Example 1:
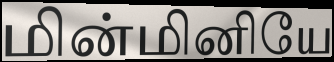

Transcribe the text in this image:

மின்மினியே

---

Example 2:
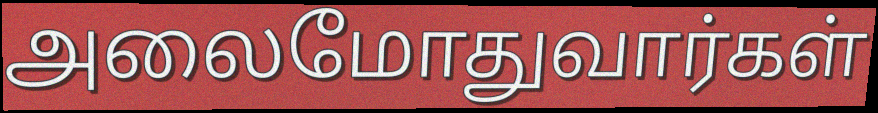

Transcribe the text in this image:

அலைமோதுவார்கள்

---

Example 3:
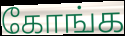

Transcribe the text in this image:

கோங்க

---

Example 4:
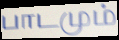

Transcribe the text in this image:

பாடமும்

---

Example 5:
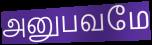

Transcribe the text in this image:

அனுபவமே